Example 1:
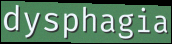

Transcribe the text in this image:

dysphagia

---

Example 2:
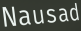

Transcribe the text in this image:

Nausad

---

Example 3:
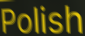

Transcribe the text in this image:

Polish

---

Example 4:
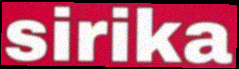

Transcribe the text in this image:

sirika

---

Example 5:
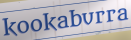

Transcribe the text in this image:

kookaburra